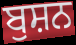
ਬੁਸ਼ਨ